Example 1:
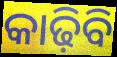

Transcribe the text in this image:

କାଢ଼ିବି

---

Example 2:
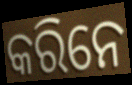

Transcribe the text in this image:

କରିନେ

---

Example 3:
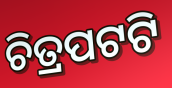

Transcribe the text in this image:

ଚିତ୍ରପଟଟି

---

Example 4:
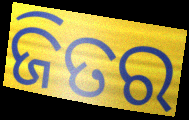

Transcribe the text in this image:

ଜିତର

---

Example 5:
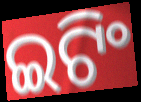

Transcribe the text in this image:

ଇଟିଂ